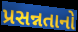
પ્રસન્નતાનો